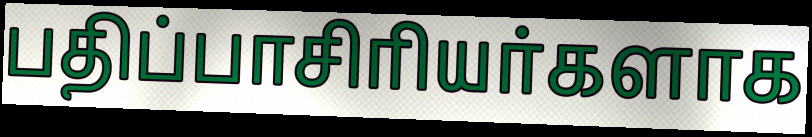
பதிப்பாசிரியர்களாக